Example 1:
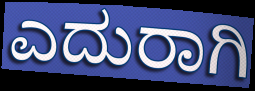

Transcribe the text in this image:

ಎದುರಾಗಿ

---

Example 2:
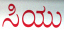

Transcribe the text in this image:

ಸಿಯು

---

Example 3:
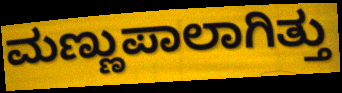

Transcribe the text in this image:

ಮಣ್ಣುಪಾಲಾಗಿತ್ತು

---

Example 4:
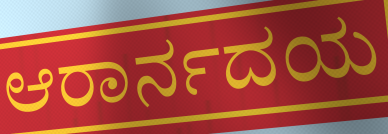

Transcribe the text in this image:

ಆರಾರ್ನದಯ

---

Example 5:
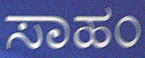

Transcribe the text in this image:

ಸಾಹಂ